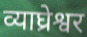
व्याघ्रेश्वर